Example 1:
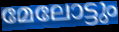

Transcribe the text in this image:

മേലോട്ടും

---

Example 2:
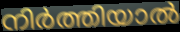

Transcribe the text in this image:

നിർത്തിയാൽ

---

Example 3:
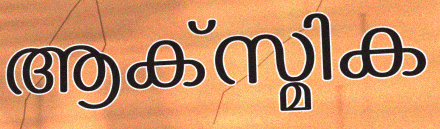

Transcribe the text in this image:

ആക്സ്മിക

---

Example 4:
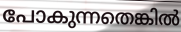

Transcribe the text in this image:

പോകുന്നതെങ്കിൽ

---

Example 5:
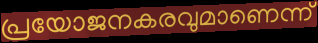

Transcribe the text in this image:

പ്രയോജനകരവുമാണെന്ന്